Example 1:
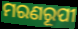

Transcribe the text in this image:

ମରଣରୂପୀ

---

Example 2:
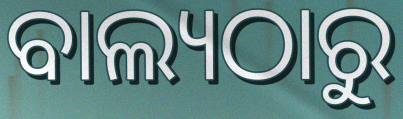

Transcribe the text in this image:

ବାଲ୍ୟଠାରୁ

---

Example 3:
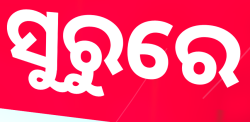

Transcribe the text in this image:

ସୁରୁରେ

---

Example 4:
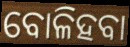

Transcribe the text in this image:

ବୋଳିହବା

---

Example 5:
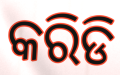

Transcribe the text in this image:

କରିଡି